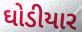
ઘોડીયાર